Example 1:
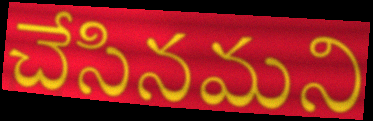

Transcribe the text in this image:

చేసినమని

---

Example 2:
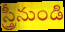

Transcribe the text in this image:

స్త్రీనుండి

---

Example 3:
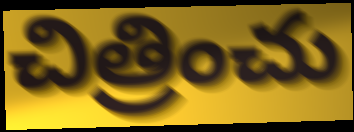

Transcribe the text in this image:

చిత్రించు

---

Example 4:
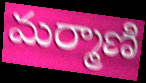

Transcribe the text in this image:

మర్మాణి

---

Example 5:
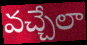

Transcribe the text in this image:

వచ్చేలా